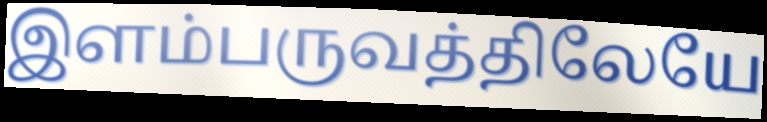
இளம்பருவத்திலேயே